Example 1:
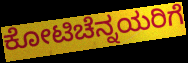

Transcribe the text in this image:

ಕೋಟಿಚೆನ್ನಯರಿಗೆ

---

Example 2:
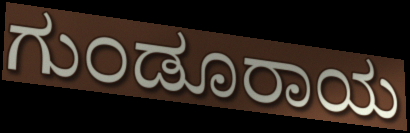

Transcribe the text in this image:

ಗುಂಡೂರಾಯ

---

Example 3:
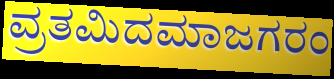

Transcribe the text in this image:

ವ್ರತಮಿದಮಾಜಗರಂ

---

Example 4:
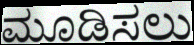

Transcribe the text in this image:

ಮೂಡಿಸಲು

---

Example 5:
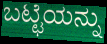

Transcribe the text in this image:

ಬಟ್ಟೆಯನ್ನು